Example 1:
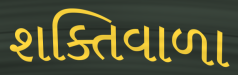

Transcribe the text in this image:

શક્તિવાળા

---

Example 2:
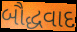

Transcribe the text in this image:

બૌદ્ધવાદ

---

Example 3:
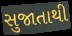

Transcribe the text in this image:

સુજાતાથી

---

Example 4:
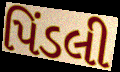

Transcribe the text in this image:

પિંડલી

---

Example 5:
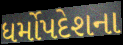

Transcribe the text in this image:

ધર્મોપદેશના